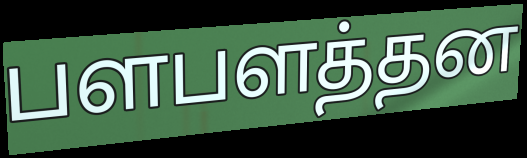
பளபளத்தன